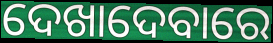
ଦେଖାଦେବାରେ